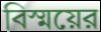
বিস্ময়ের